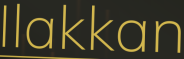
Ilakkan